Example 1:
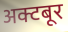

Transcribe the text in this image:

अक्टबूर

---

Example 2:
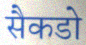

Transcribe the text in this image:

सैकडो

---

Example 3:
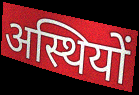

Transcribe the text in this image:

अस्थियों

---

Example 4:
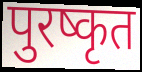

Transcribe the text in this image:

पुरष्कृत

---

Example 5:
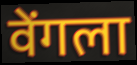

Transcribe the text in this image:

वेंगला